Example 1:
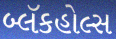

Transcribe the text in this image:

બ્લૅકહોલ્સ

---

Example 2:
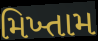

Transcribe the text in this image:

મિખ્તામ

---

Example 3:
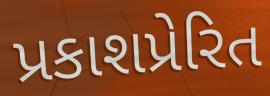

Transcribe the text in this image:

પ્રકાશપ્રેરિત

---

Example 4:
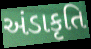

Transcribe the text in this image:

અંડાકૃતિ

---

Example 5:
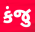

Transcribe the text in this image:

કંજુ